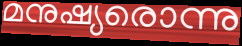
മനുഷ്യരൊന്നു